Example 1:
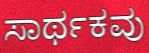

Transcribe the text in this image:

ಸಾರ್ಥಕವು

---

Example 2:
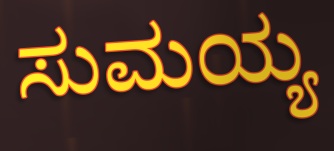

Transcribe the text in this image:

ಸುಮಯ್ಯ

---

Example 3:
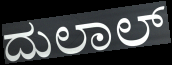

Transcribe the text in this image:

ದುಲಾಲ್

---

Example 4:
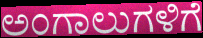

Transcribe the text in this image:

ಅಂಗಾಲುಗಳಿಗೆ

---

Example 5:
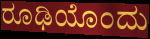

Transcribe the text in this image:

ರೂಢಿಯೊಂದು